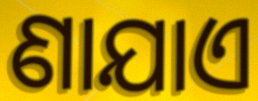
ଣାଯାଏ